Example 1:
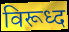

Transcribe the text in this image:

विरूध्द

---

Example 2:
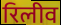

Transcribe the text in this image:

रिलीव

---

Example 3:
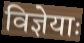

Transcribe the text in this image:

विज्ञेयाः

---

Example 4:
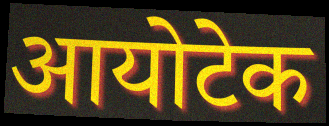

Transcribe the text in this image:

आयोटेक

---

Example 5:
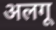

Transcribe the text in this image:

अलगू